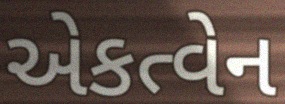
એકત્વેન